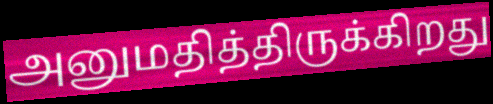
அனுமதித்திருக்கிறது